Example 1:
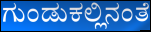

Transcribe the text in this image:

ಗುಂಡುಕಲ್ಲಿನಂತೆ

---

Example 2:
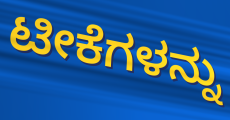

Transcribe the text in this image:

ಟೀಕೆಗಳನ್ನು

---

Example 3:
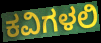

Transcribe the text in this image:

ಕವಿಗಳಲಿ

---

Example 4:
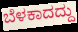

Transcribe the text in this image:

ಬೆಳಕಾದದ್ದು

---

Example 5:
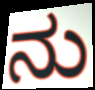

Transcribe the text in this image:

ನು